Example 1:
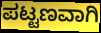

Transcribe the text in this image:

ಪಟ್ಟಣವಾಗಿ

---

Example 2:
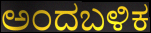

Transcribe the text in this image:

ಅಂದಬಳಿಕ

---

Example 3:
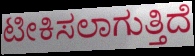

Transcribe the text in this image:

ಟೀಕಿಸಲಾಗುತ್ತಿದೆ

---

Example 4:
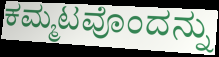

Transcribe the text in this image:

ಕಮ್ಮಟವೊಂದನ್ನು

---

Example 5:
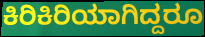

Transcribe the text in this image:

ಕಿರಿಕಿರಿಯಾಗಿದ್ದರೂ